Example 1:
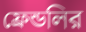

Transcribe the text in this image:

ফ্রেন্ডলির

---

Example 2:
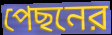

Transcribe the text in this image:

পেছনের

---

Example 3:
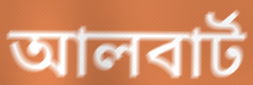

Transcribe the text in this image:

আলবার্ট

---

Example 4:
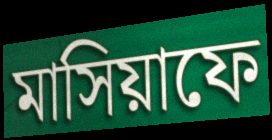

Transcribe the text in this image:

মাসিয়াফে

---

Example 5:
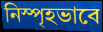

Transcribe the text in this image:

নিস্পৃহভাবে